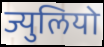
ज्युलियो